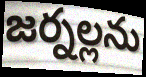
జర్నల్లను